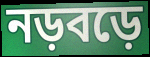
নড়বড়ে